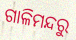
ଗାଳିମନ୍ଦରୁ